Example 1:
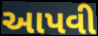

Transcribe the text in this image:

આપવી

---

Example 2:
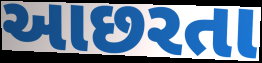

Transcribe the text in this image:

આછરતા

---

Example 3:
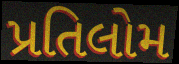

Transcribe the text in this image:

પ્રતિલોમ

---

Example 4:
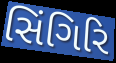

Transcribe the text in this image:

સિંગિરિ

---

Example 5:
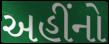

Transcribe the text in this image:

અહીંનો